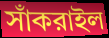
সাঁকরাইল